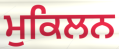
ਮੁਕਿਲਨ